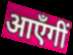
आएँगीं